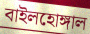
বাইলহোঙ্গাল